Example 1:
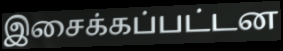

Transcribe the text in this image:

இசைக்கப்பட்டன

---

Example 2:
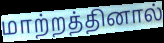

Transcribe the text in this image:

மாற்றத்தினால்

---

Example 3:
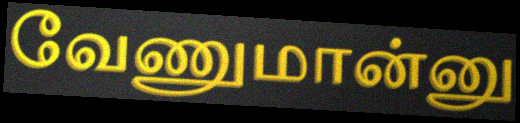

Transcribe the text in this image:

வேணுமான்னு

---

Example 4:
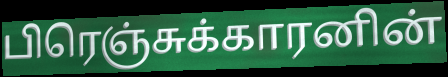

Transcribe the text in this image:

பிரெஞ்சுக்காரனின்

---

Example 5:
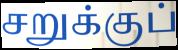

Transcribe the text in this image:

சறுக்குப்